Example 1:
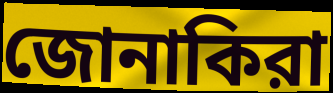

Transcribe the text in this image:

জোনাকিরা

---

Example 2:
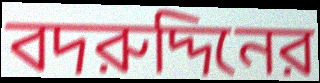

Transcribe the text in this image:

বদরুদ্দিনের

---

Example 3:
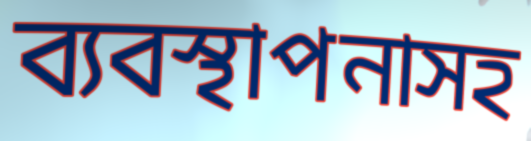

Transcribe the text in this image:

ব্যবস্থাপনাসহ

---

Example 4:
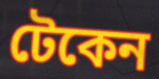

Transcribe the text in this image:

টেকেন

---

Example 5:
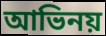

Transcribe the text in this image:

আভিনয়